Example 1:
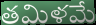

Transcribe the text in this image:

తమిళమే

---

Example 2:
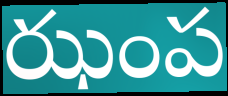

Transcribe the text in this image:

ఝంప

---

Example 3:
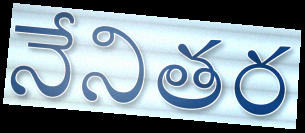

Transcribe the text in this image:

నేనితర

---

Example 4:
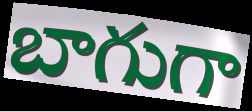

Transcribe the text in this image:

బాగుగా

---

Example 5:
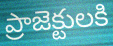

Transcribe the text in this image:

ప్రాజెక్టులకి